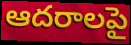
ఆదరాలపై